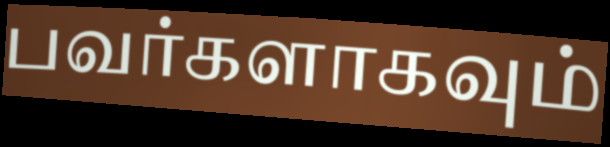
பவர்களாகவும்